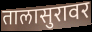
तालासुरावर